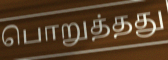
பொறுத்தது